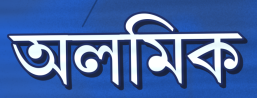
অলমিক